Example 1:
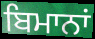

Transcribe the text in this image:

ਬਿਮਾਨਾਂ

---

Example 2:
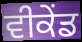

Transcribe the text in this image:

ਵੀਕੇਂਡ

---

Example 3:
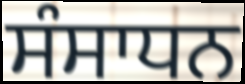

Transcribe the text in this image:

ਸੰਸਾਧਨ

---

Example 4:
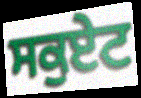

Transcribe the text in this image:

ਸਕੁਏਟ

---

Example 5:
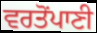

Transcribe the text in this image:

ਵਰਤੋਂਪਾਣੀ